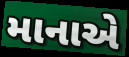
માનાએ